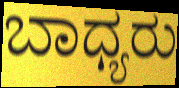
ಬಾಧ್ಯರು